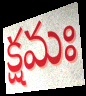
క్షమః